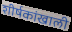
शीर्षकांखाली